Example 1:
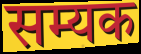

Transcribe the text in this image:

सम्‍यक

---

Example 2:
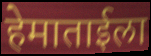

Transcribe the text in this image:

हेमाताईला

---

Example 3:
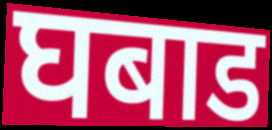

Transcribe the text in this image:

घबाड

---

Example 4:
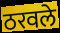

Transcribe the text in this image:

ठरवले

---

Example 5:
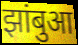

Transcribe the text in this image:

झांबुआ